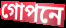
গোপনে